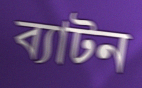
ব্যাটন